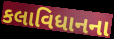
કલાવિધાનના